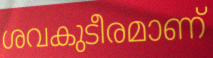
ശവകുടീരമാണ്